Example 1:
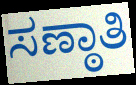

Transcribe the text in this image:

ಸಣ್ಠಾತಿ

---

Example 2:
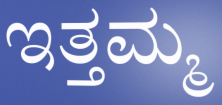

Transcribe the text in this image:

ಇತ್ತಮ್ಮ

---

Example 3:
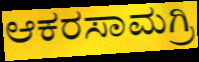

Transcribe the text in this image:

ಆಕರಸಾಮಗ್ರಿ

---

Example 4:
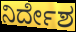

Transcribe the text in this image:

ನಿರ್ದೇಶ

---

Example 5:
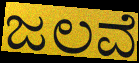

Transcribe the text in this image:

ಜಲವೆ